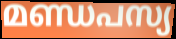
മണ്ഡപസ്യ